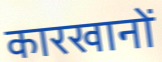
कारखानों